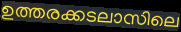
ഉത്തരക്കടലാസിലെ